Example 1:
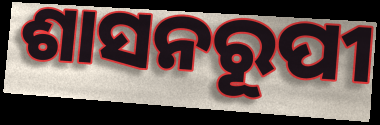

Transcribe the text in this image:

ଶାସନରୂପୀ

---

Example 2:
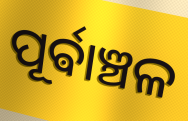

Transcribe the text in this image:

ପୂର୍ଵାଞ୍ଚଳ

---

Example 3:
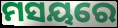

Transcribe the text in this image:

ମସୟରେ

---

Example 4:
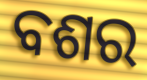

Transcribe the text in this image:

ବଶର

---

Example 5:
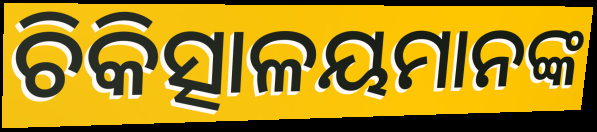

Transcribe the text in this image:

ଚିକିତ୍ସାଳୟମାନଙ୍କ